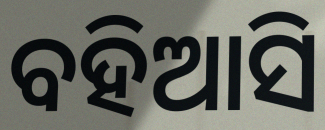
ବହିଆସି